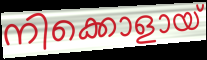
നിക്കൊളായ്